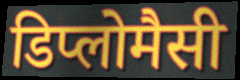
डिप्लोमैसी